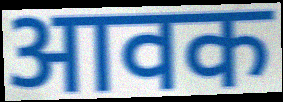
आवक